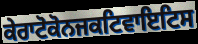
ਕੇਰਾਟੋਕੋਨਜਕਟਿਵਾਇਟਿਸ